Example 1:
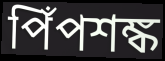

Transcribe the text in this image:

পিঁপশঙ্ক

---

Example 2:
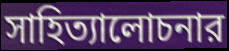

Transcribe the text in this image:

সাহিত্যালোচনার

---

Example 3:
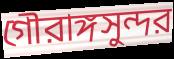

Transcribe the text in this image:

গৌরাঙ্গসুন্দর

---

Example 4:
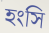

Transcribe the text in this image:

হংসি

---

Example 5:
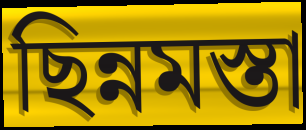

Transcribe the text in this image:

ছিন্নমস্তা